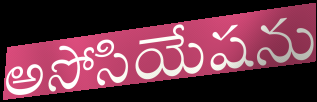
అసోసియేషను